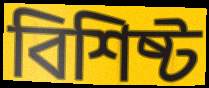
বিশিষ্ট